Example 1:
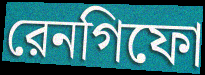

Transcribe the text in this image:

রেনগিফো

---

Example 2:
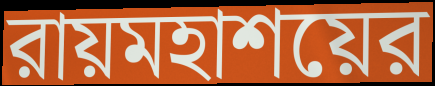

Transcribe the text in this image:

রায়মহাশয়ের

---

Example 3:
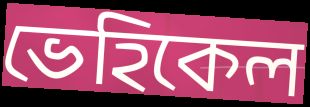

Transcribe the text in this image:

ভেহিকেল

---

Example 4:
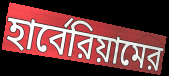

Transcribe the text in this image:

হার্বেরিয়ামের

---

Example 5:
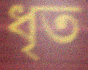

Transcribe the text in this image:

ধৃত